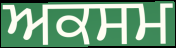
ਅਕਸਮ